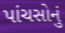
પાંચસોનું